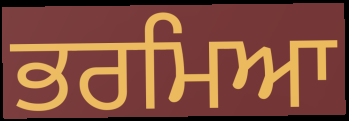
ਭਰਮਿਆ